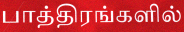
பாத்திரங்களில்